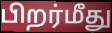
பிறர்மீது